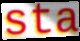
sta